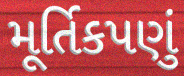
મૂર્તિકપણું